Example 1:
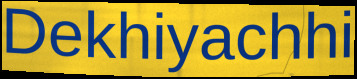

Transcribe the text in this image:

Dekhiyachhi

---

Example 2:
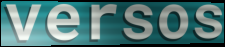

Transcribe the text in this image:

versos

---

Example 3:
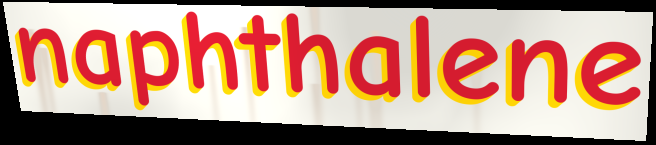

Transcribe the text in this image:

naphthalene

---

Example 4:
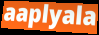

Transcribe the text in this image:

aaplyala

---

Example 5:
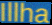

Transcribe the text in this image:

Illha